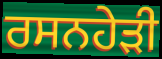
ਰਸਨਹੇੜੀ